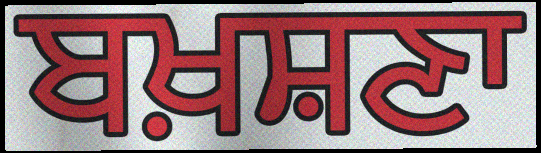
ਬਖ਼ਸ਼ਣਾ